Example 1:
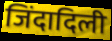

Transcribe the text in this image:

जिंदादिली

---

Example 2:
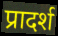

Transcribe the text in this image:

प्रादर्श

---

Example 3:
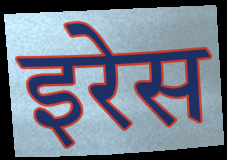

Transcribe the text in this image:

इरेस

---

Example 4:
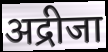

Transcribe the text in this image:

अद्रीजा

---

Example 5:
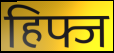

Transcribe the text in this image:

हिफ्ज